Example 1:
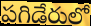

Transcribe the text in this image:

పగిడేరులో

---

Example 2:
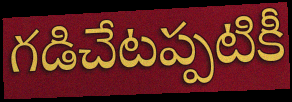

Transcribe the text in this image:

గడిచేటప్పటికీ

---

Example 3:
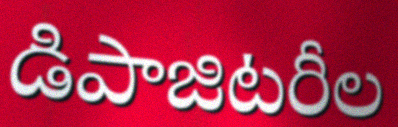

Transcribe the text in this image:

డిపాజిటరీల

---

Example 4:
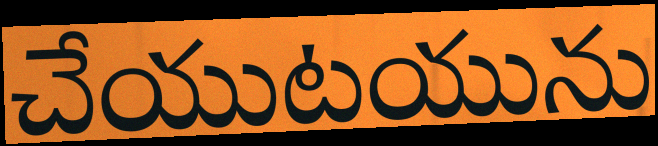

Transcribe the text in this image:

చేయుటయును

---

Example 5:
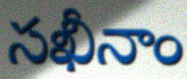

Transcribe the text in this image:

సఖీనాం